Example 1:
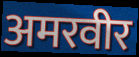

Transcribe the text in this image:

अमरवीर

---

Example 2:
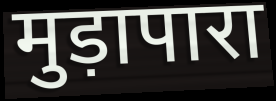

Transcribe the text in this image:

मुड़ापारा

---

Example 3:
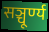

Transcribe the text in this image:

सञ्चूर्ण्य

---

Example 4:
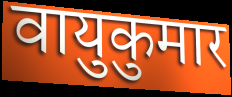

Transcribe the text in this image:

वायुकुमार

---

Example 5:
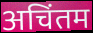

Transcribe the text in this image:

अचिंतम